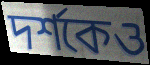
দৰ্শকেও